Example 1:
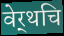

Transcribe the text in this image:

वेर्थचि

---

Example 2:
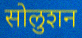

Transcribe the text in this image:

सोलुशन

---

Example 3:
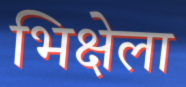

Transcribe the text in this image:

भिक्षेला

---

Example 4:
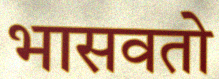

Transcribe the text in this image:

भासवतो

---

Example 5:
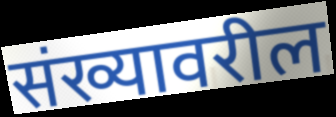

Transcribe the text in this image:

संख्यावरील